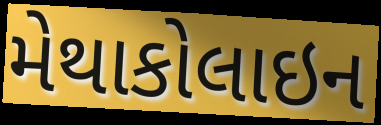
મેથાકોલાઇન